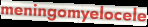
meningomyelocele